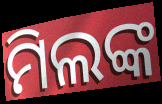
ମିଲଙ୍କ